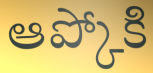
ఆప్కోకి